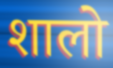
शालो